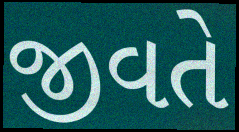
જીવતે